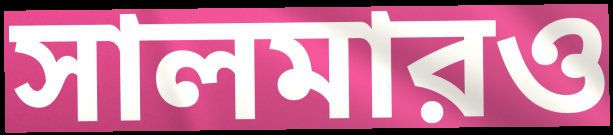
সালমারও